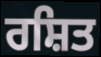
ਰਸ਼ਿਤ